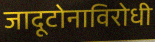
जादूटोनाविरोधी